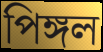
পিঙ্গল